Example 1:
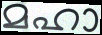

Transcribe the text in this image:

മഹാ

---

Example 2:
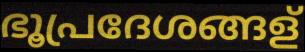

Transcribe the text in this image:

ഭൂപ്രദേശങ്ങള്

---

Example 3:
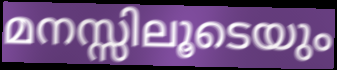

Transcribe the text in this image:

മനസ്സിലൂടെയും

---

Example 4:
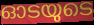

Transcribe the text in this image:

ഓടയുടെ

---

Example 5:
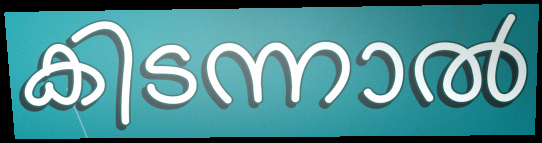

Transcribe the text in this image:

കിടന്നാൽ